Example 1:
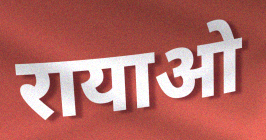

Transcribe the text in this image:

रायाओ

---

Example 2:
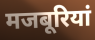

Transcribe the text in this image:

मजबूरियां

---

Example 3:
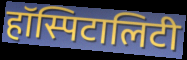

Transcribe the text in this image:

हॉस्पिटालिटी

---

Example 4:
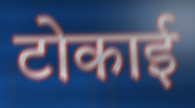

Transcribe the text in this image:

टोकाई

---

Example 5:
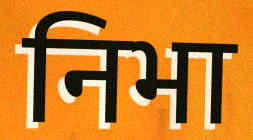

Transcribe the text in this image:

निभा